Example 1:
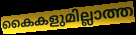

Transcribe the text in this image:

കൈകളുമില്ലാത്ത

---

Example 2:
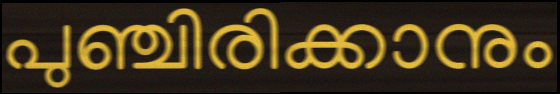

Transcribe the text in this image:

പുഞ്ചിരിക്കാനും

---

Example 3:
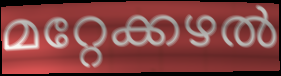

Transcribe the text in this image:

മറ്റേക്കഴൽ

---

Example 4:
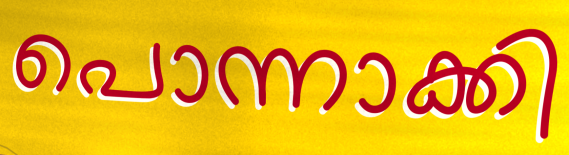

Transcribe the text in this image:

പൊന്നാക്കി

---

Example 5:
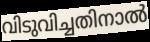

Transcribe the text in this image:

വിടുവിച്ചതിനാൽ